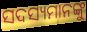
ସଦସ୍ୟମାନଙ୍କୁ